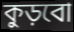
কুড়বো